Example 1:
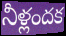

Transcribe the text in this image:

నీళ్లందక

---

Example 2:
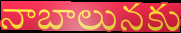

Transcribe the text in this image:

నాబాలునకు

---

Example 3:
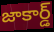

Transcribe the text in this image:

జాకార్డ్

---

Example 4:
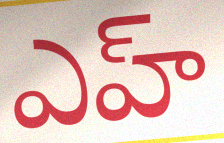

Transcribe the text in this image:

ఎహ్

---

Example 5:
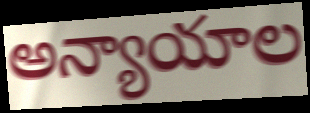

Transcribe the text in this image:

అన్యాయాల